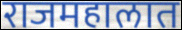
राजमहालात